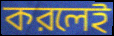
করলেই